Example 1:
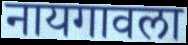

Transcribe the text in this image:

नायगावला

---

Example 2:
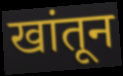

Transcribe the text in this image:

खांतून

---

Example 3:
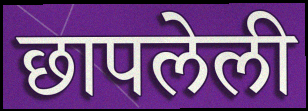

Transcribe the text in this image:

छापलेली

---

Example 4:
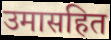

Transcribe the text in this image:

उमासहित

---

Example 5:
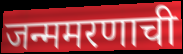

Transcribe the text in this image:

जन्ममरणाची